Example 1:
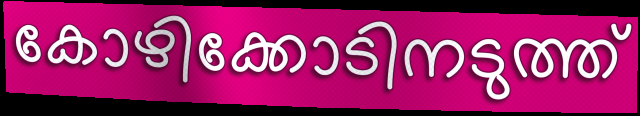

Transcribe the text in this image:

കോഴിക്കോടിനടുത്ത്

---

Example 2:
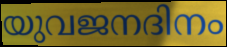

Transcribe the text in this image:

യുവജനദിനം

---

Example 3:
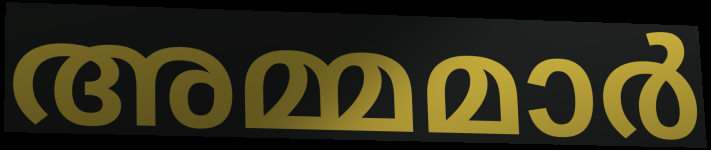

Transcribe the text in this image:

അമ്മമാർ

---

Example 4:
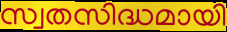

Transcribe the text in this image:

സ്വതസിദ്ധമായി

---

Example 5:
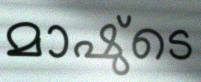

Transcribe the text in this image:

മാഷു്ടെ